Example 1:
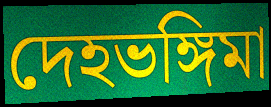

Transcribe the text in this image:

দেহভঙ্গিমা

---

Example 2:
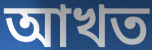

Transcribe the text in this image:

আখত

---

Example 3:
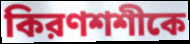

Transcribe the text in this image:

কিরণশশীকে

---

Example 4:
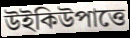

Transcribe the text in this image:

উইকিউপাত্তে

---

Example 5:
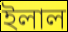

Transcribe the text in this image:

ইলাল